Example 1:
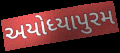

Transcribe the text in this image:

અયોધ્યાપુરમ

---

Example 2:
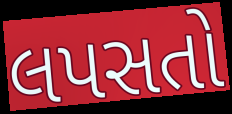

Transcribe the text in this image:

લપસતો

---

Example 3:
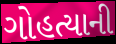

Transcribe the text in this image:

ગોહત્યાની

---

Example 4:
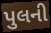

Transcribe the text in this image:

પુલની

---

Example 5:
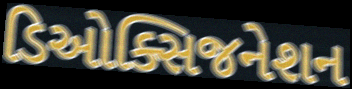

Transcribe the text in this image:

ડિઓક્સિજનેશન